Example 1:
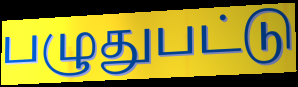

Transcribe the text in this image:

பழுதுபட்டு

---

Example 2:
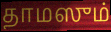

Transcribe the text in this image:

தாமஸும்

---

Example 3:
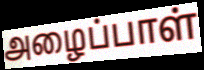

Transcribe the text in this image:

அழைப்பாள்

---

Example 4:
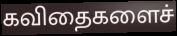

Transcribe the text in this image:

கவிதைகளைச்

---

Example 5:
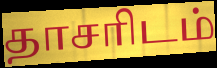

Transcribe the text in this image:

தாசரிடம்